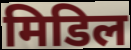
मिडिल